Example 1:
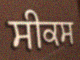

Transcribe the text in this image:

ਸੀਕਸ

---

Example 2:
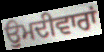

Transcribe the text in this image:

ਉਮਦੀਵਾਰਾਂ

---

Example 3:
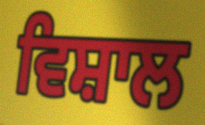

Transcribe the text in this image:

ਵਿਸ਼ਾਲ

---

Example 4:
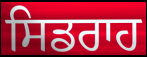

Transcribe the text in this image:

ਸਿਡਰਾਹ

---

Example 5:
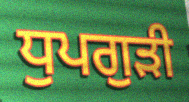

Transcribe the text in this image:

ਧੁਪਗੁੜੀ